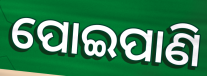
ପୋଇପାଣି